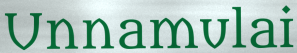
Unnamulai